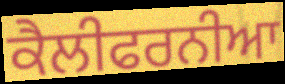
ਕੈਲੀਫਰਨੀਆ